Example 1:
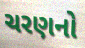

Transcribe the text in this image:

ચરણનો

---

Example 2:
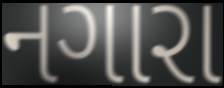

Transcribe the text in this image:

નગારા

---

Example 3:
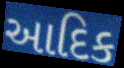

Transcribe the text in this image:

આદિક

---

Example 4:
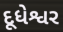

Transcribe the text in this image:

દૂધેશ્વર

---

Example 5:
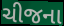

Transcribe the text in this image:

ચીજના